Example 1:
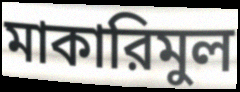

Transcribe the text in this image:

মাকারিমুল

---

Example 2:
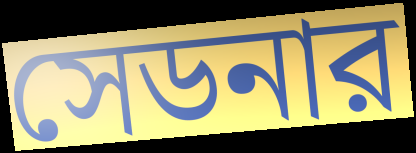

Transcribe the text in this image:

সেডনার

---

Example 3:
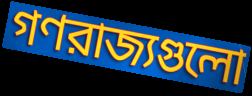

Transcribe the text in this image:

গণরাজ্যগুলো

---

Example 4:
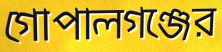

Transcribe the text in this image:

গোপালগঞ্জের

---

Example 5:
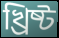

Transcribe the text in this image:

খ্রিষ্ট